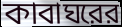
কাবাঘরের